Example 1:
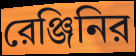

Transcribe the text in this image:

রেঞ্জিনির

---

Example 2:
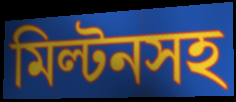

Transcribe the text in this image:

মিল্টনসহ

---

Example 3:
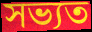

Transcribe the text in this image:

সভ্যত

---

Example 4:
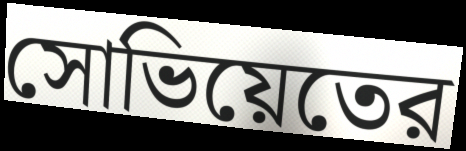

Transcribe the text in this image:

সোভিয়েতের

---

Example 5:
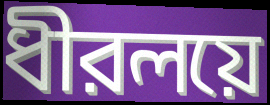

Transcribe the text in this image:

ধীরলয়ে